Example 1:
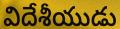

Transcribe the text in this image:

విదేశీయుడు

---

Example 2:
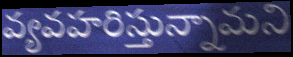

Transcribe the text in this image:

వ్యవహరిస్తున్నామని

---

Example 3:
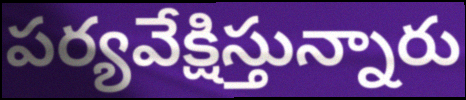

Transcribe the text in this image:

పర్యవేక్షిస్తున్నారు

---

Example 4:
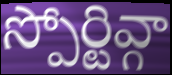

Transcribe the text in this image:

స్పోర్టివ్గా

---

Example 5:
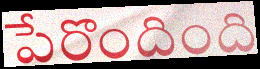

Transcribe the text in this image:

పేరొందింది